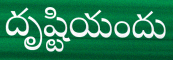
దృష్టియందు